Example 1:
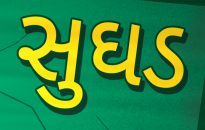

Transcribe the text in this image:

સુઘડ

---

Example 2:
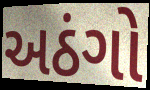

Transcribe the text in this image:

અઠંગો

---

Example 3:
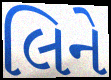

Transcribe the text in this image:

લિને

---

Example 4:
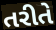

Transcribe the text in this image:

તરીતે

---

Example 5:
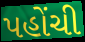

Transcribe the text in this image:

પહોંચી